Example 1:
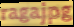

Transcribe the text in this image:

ragajpg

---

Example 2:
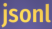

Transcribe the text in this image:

jsonl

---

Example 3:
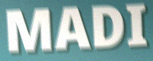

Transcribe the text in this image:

MADI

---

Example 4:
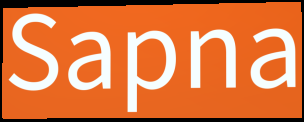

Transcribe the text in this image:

Sapna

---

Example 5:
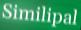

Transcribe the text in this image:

Similipal